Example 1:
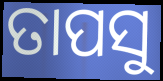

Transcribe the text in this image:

ତାପସୁ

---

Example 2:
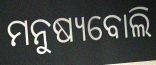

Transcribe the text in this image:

ମନୁଷ୍ୟବୋଲି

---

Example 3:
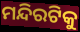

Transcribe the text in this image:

ମନ୍ଦିରଟିକୁ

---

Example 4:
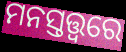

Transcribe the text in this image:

ମନସ୍ତତ୍ତ୍ଵରେ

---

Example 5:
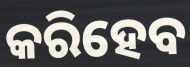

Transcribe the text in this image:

କରିହେବ